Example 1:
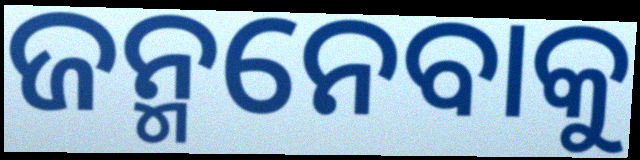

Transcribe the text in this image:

ଜନ୍ମନେବାକୁ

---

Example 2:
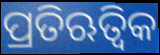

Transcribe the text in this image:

ପ୍ରତିଋତ୍ୱିକ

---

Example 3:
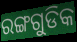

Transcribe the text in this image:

ରଙ୍ଗଗୁଡିକ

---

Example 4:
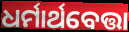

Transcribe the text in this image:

ଧର୍ମାର୍ଥବେତ୍ତା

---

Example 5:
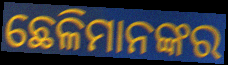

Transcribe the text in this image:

ଛେଳିମାନଙ୍କର